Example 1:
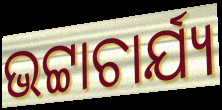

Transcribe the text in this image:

ଭଟ୍ଟାଚାର୍ଯ୍ୟ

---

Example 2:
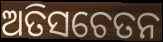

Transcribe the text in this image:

ଅତିସଚେତନ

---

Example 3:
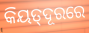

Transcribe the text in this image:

କିୟତ୍‌ଦୂରରେ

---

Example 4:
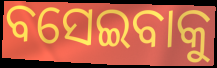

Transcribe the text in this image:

ବସେଇବାକୁ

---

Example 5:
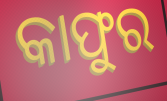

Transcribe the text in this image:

କାଫୁର